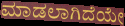
ಮಾಡಲಾಗಿದೆಯೇ